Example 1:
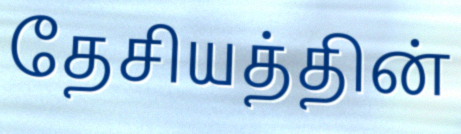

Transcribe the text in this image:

தேசியத்தின்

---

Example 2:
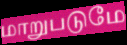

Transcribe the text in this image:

மாறுபடுமே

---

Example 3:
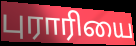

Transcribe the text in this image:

புராரியை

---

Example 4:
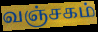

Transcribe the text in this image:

வஞ்சகம்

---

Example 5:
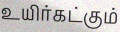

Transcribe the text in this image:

உயிர்கட்கும்